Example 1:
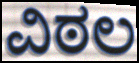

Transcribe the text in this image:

ವಿಠಲ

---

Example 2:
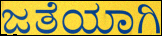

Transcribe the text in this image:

ಜತೆಯಾಗಿ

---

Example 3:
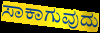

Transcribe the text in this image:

ಸಾಕಾಗುವುದು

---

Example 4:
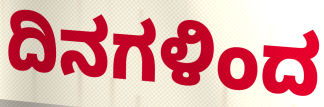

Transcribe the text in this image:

ದಿನಗಳಿಂದ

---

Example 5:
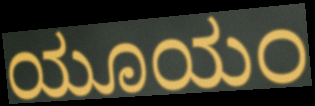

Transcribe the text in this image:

ಯೂಯಂ